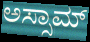
ಅಸ್ಸಾಮ್